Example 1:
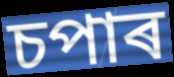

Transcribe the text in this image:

চপাৰ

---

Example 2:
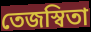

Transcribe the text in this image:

তেজস্বিতা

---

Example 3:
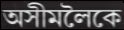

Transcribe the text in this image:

অসীমলৈকে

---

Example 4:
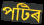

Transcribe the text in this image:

পটিৰ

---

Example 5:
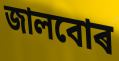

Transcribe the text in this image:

জালবোৰ